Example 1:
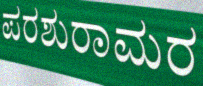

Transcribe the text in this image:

ಪರಶುರಾಮರ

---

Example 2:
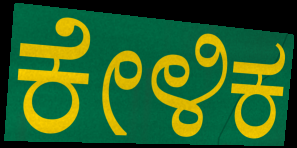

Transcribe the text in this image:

ಕೇಳಿಕ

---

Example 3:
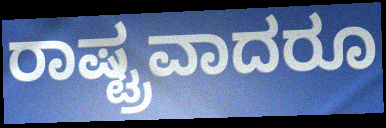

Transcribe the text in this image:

ರಾಷ್ಟ್ರವಾದರೂ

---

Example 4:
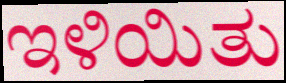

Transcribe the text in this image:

ಇಳಿಯಿತು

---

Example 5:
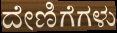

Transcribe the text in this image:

ದೇಣಿಗೆಗಳು